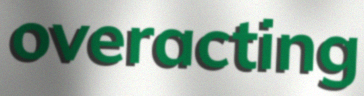
overacting